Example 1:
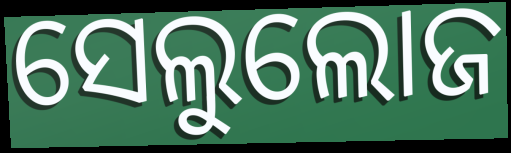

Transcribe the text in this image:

ସେଲୁଲୋଜ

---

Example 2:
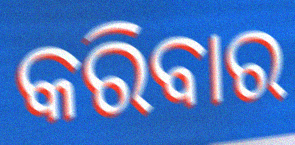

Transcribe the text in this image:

କରିବାର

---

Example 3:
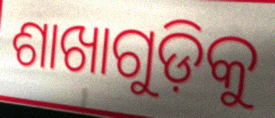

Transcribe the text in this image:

ଶାଖାଗୁଡ଼ିକୁ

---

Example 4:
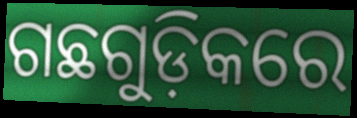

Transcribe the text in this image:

ଗଛଗୁଡ଼ିକରେ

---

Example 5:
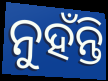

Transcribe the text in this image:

ନୁହଁନ୍ତି